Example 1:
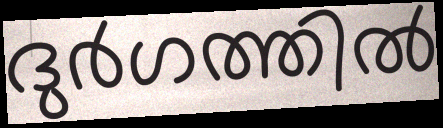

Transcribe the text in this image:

ദുർഗത്തിൽ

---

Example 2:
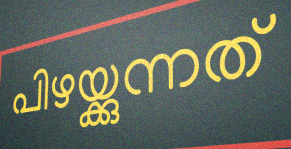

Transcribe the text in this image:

പിഴയ്ക്കുന്നത്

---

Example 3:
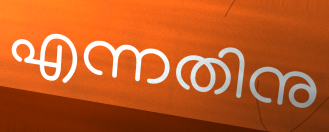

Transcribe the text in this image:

എന്നതിനു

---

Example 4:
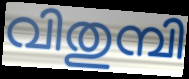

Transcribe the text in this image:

വിതുമ്പി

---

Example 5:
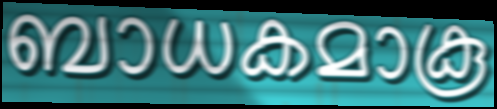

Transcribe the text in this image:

ബാധകമാകൂ